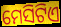
ମେସିଟିଏ